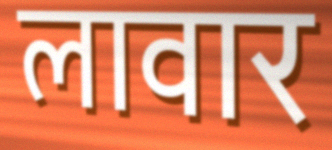
लावार